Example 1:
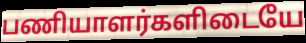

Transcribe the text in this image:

பணியாளர்களிடையே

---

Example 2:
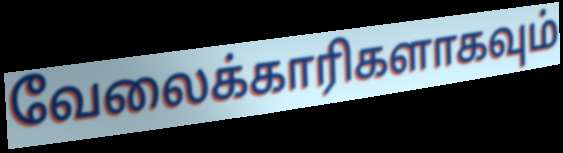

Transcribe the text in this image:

வேலைக்காரிகளாகவும்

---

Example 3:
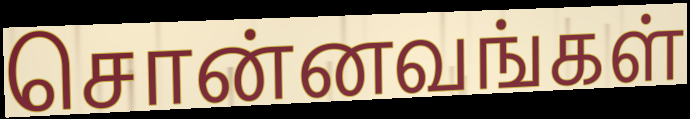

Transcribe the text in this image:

சொன்னவங்கள்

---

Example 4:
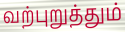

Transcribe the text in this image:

வற்புறுத்தும்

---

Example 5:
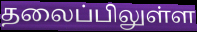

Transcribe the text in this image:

தலைப்பிலுள்ள